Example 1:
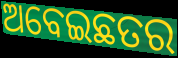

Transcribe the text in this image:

ଅବେଇଛତର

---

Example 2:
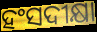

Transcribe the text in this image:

ହଂସଦୀକ୍ଷା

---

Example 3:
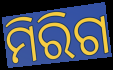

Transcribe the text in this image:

ମିରିଗ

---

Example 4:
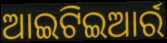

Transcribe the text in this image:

ଆଇଟିଇଆର୍ର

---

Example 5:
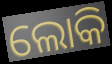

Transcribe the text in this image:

ଲୋକି